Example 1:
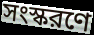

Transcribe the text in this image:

সংস্করণে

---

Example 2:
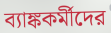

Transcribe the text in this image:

ব্যাঙ্ককর্মীদের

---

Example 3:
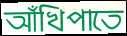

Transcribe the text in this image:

আঁখিপাতে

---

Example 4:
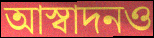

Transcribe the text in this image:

আস্বাদনও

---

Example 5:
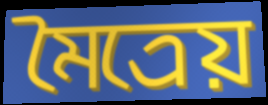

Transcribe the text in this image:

মৈত্রেয়